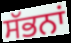
ਸੱਭਨਾਂ